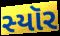
સ્યૉર